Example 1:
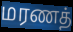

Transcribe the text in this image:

மரணத்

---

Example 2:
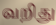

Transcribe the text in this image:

வறிது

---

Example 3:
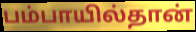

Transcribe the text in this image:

பம்பாயில்தான்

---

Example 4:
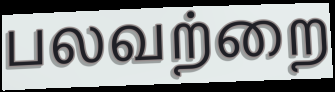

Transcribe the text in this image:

பலவற்றை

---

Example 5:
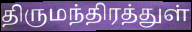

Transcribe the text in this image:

திருமந்திரத்துள்